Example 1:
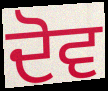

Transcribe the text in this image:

ਦੋਵ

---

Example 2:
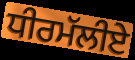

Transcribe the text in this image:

ਧੀਰਮੱਲੀਏ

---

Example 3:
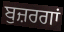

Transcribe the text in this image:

ਬੁਜ਼ਰਗਾਂ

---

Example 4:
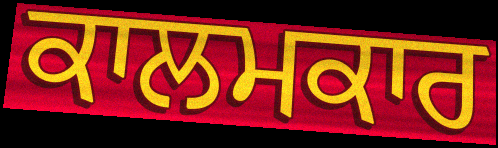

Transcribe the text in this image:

ਕਾਲਮਕਾਰ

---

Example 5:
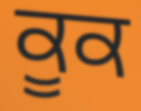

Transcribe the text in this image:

ਕੂਕ